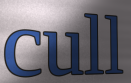
cull